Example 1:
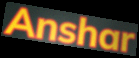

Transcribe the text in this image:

Anshar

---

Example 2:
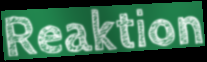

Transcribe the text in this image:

Reaktion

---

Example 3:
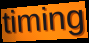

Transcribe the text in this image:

timing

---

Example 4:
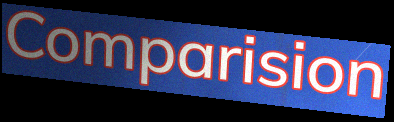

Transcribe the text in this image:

Comparision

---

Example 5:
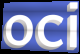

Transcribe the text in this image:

oci